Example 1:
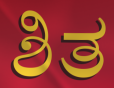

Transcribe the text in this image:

ಶಿತ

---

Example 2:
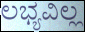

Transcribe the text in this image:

ಲಭ್ಯವಿಲ್ಲ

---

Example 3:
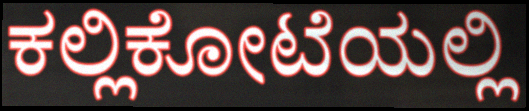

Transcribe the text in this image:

ಕಲ್ಲಿಕೋಟೆಯಲ್ಲಿ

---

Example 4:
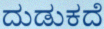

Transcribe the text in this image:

ದುಡುಕದೆ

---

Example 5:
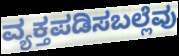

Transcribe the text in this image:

ವ್ಯಕ್ತಪಡಿಸಬಲ್ಲೆವು